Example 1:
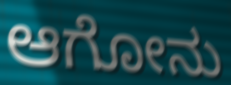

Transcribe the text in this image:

ಆಗೋನು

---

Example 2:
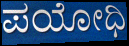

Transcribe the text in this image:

ಪಯೋಧಿ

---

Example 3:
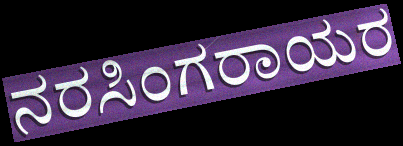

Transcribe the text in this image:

ನರಸಿಂಗರಾಯರ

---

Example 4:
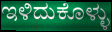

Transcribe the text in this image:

ಇಳಿದುಕೊಳ್ಳು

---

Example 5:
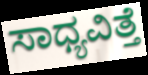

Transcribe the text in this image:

ಸಾಧ್ಯವಿತ್ತೆ